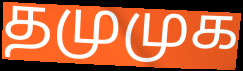
தமுமுக